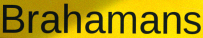
Brahamans